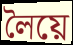
লৈয়ে